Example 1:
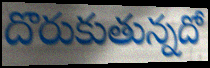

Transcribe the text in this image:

దొరుకుతున్నదో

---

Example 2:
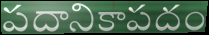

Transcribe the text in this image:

పదానికాపదం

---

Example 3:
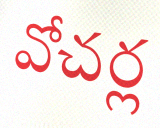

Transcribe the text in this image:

వోచర్ల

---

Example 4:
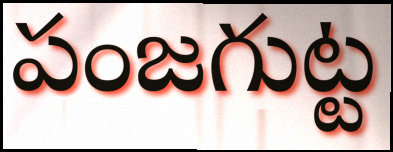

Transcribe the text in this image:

పంజగుట్ట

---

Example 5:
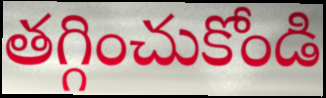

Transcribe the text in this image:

తగ్గించుకోండి